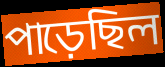
পাড়েছিল